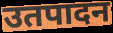
उतपादन